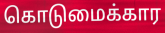
கொடுமைக்கார